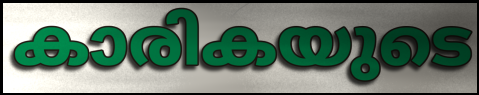
കാരികയുടെ